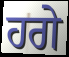
ਹਗੇ